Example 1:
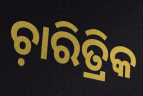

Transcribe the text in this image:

ଚ଼ାରିତ୍ରିକ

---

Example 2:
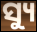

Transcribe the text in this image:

ସ୍ୟୁ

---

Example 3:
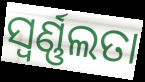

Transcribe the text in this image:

ସ୍ଵର୍ଣ୍ଣଲତା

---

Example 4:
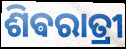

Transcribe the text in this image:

ଶିଵରାତ୍ରୀ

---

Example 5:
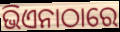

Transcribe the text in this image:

ଭିଏନାଠାରେ